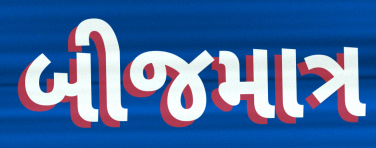
બીજમાત્ર